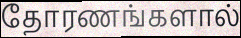
தோரணங்களால்